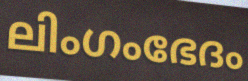
ലിംഗംഭേദം